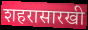
शहरासारखी